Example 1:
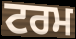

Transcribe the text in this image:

ਟਰਮ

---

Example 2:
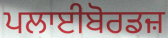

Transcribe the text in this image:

ਪਲਾਈਬੋਰਡਜ਼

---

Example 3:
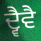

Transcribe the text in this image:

ਦ੍ਵੈਵੈ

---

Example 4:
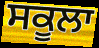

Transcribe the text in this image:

ਸਕੂਲਾ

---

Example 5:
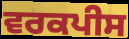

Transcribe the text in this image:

ਵਰਕਪੀਸ